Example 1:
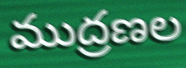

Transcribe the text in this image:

ముద్రణల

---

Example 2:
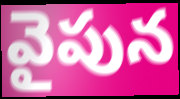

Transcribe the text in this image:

వైపున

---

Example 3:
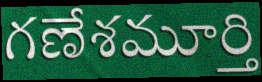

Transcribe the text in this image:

గణేశమూర్తి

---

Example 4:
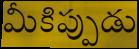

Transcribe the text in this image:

మీకిప్పుడు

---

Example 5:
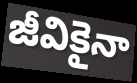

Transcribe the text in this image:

జీవికైనా